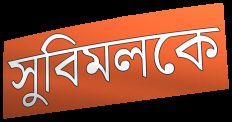
সুবিমলকে